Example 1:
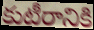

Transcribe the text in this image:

కుటీరానికి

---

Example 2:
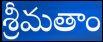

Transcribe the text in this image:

శ్రీమతాం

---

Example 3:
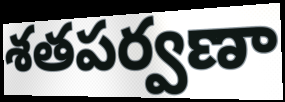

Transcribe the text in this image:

శతపర్వణా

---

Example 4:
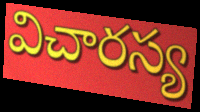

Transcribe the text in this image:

విచారస్య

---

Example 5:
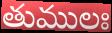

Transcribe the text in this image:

తుములః